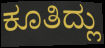
ಕೂತಿದ್ಲು